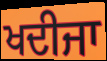
ਖਦੀਜਾ